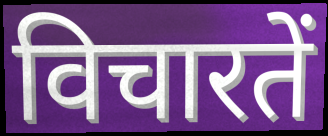
विचारतें